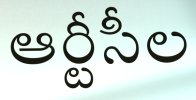
ఆర్టీసీల